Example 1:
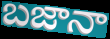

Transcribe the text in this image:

బజానా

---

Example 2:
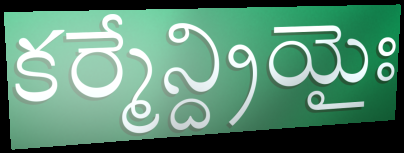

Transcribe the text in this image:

కర్మేన్ద్రియైః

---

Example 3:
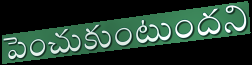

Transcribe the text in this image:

పెంచుకుంటుందని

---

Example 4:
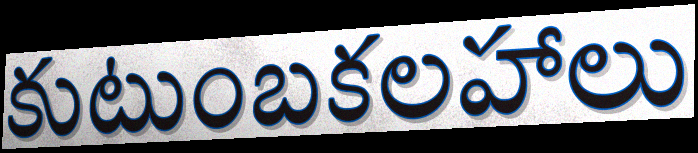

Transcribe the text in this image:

కుటుంబకలహాలు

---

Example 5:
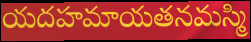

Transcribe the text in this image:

యదహమాయతనమస్మి